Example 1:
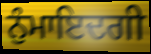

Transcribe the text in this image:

ਨੁੰਮਾਇਦਗੀ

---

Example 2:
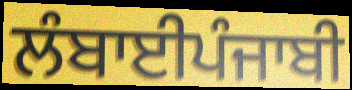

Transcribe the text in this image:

ਲੰਬਾਈਪੰਜਾਬੀ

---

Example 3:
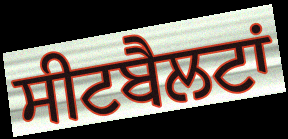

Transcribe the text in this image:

ਸੀਟਬੈਲਟਾਂ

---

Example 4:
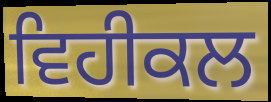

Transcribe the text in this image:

ਵਿਹੀਕਲ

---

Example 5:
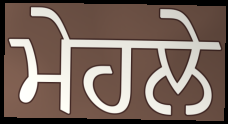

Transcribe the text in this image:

ਮੇਹਲੇ